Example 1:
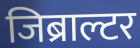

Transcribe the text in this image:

जिब्राल्टर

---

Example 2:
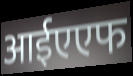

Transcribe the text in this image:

आईएएफ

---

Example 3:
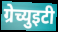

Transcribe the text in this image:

ग्रेच्युइटी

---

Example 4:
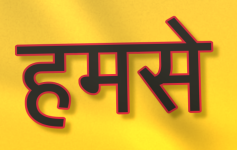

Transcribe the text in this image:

हमसे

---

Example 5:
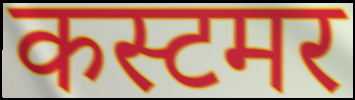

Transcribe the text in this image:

कस्टमर